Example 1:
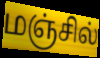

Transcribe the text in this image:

மஞ்சில்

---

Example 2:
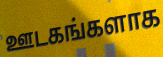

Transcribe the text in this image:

ஊடகங்களாக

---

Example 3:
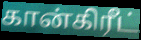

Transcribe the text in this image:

கான்கிரீட்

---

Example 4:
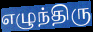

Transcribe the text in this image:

எழுந்திரு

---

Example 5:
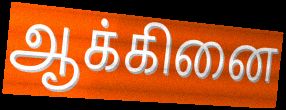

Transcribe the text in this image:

ஆக்கினை